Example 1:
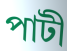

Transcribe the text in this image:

পাটী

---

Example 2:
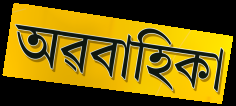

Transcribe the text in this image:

অৱবাহিকা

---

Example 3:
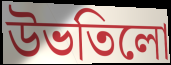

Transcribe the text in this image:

উভতিলো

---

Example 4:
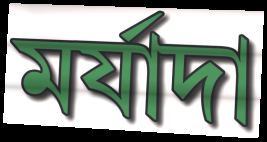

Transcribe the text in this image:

মৰ্যাদা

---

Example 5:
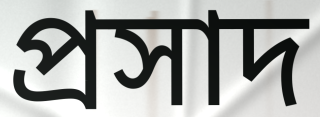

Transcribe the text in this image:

প্ৰসাদ